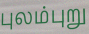
புலம்புறு